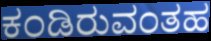
ಕಂಡಿರುವಂತಹ